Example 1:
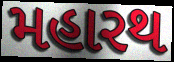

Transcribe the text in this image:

મહારથ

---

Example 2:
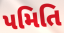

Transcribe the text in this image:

પમિતિ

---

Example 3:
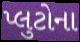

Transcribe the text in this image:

પ્લુટોના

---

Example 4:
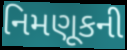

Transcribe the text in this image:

નિમણૂકની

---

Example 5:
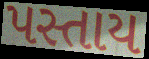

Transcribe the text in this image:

પસ્તાય